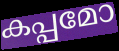
കപ്പമോ